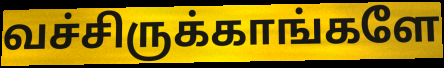
வச்சிருக்காங்களே